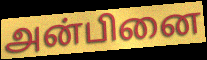
அன்பினை